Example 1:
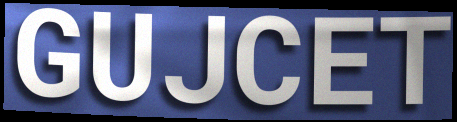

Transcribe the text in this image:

GUJCET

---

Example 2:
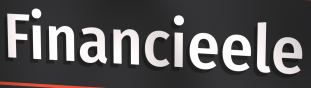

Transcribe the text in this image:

Financieele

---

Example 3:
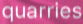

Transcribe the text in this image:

quarries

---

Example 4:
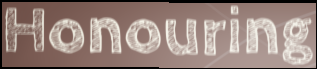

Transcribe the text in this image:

Honouring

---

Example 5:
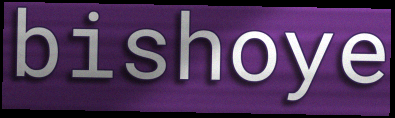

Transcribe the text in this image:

bishoye